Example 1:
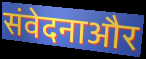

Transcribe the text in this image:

संवेदनाऔर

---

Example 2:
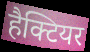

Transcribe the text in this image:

हैक्टियर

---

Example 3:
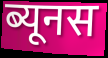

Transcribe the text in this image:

ब्यूनस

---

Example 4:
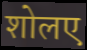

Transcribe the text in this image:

शोलए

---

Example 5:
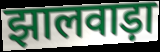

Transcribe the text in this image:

झालवाड़ा